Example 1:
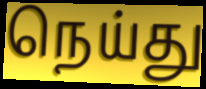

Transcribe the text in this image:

நெய்து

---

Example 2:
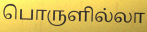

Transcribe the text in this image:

பொருளில்லா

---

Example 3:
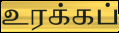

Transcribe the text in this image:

உரக்கப்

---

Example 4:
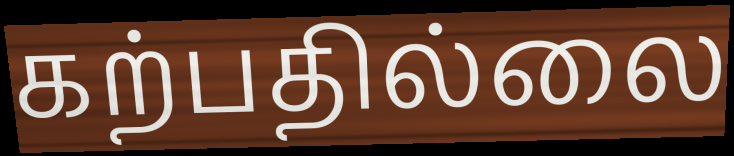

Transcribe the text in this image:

கற்பதில்லை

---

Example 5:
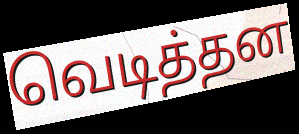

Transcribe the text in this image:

வெடித்தன